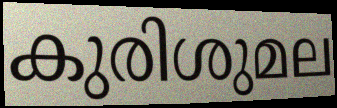
കുരിശുമല